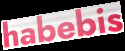
habebis